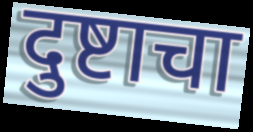
दुष्टाचा